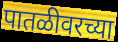
पातळीवरच्या